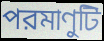
পরমাণুটি